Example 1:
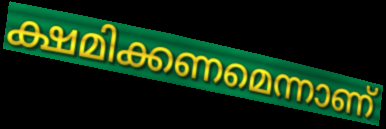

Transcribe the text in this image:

ക്ഷമിക്കണമെന്നാണ്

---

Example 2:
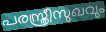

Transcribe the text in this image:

പരസ്ത്രീസുഖവും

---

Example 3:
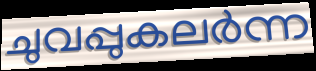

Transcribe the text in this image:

ചുവപ്പുകലർന്ന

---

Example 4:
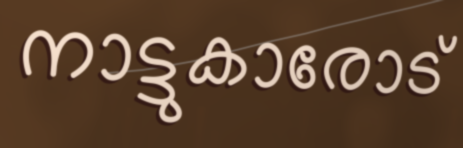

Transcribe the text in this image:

നാട്ടുകാരോട്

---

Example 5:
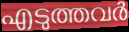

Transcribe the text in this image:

എടുത്തവർ